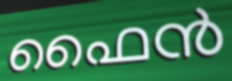
ഫൈൻ